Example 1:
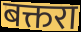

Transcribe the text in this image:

बक्तरा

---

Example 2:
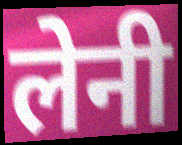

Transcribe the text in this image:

लेनी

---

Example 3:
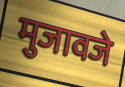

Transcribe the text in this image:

मुजावजे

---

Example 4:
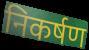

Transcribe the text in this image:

निकर्षण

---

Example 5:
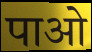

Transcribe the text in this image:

पाओ